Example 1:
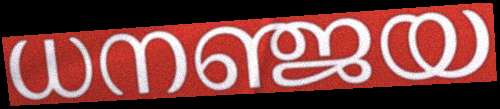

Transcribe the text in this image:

ധനഞ്ജയ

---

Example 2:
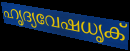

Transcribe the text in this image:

ഹൃദ്യവേഷധൃക്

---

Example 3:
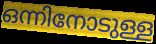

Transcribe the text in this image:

ഒന്നിനോടുള്ള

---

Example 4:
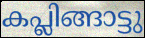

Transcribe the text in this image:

കപ്ലിങ്ങാട്ടു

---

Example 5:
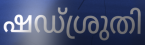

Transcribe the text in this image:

ഷഡ്ശ്രുതി